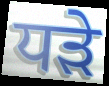
ਧੜੇ